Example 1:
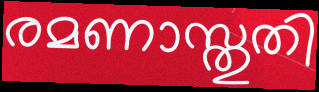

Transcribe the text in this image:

രമണാസ്തുതി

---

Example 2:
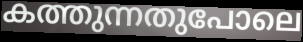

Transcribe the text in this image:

കത്തുന്നതുപോലെ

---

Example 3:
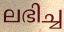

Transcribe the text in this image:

ലഭിച്ച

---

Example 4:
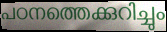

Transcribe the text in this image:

പഠനത്തെക്കുറിച്ചും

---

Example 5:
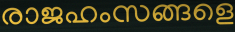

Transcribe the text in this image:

രാജഹംസങ്ങളെ